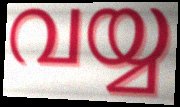
വയ്യ